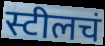
स्टीलचं